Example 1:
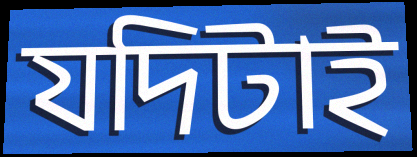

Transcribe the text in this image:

যদিটাই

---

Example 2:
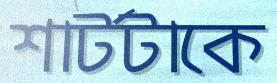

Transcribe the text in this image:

শার্টটাকে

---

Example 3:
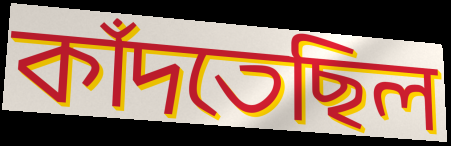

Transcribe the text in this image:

কাঁদতেছিল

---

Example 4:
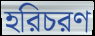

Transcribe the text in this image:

হরিচরণ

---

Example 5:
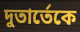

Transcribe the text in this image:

দুতার্তেকে